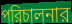
পরিচালনার